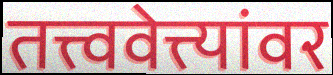
तत्त्ववेत्त्यांवर